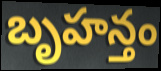
బృహన్తం